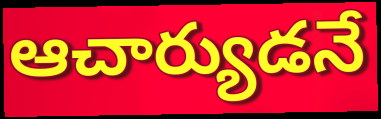
ఆచార్యుడనే